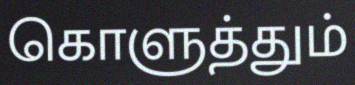
கொளுத்தும்